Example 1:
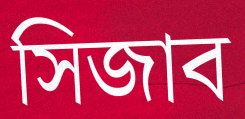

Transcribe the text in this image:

সিজাব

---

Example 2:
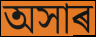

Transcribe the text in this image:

অসাৰ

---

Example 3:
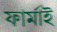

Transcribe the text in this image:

ফাৰ্মাই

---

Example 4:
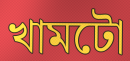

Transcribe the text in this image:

খামটো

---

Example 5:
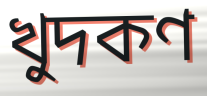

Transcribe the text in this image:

খুদকণ